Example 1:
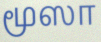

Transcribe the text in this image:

மூஸா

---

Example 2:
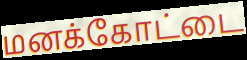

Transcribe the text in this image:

மனக்கோட்டை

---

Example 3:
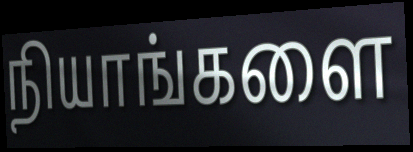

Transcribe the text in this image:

நியாங்களை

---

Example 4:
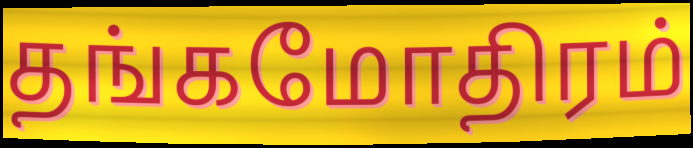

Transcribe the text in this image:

தங்கமோதிரம்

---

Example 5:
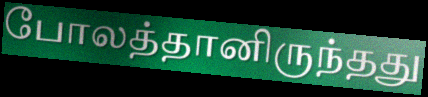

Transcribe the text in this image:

போலத்தானிருந்தது